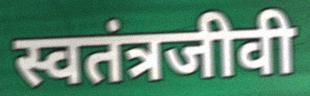
स्वतंत्रजीवी